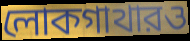
লোকগাথারও